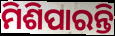
ମିଶିପାରନ୍ତି